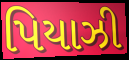
પિયાઝી